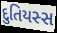
દુતિયસ્સ